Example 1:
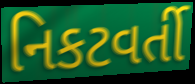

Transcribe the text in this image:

નિકટવર્તી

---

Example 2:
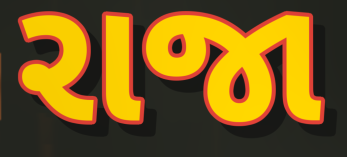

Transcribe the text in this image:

રાજા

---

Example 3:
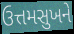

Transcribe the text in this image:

ઉત્તમસુખને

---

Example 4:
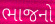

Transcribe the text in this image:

ભાજનો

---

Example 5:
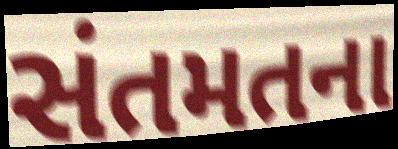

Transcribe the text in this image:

સંતમતના